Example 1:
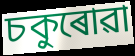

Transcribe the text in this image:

চকুৰোৱা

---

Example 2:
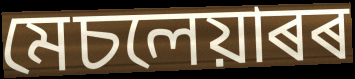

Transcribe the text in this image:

মেচলেয়াৰৰ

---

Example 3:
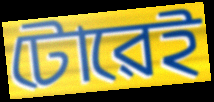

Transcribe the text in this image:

টোৱেই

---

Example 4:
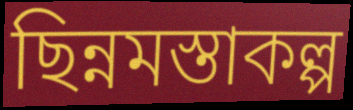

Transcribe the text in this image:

ছিন্নমস্তাকল্প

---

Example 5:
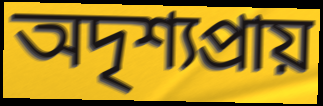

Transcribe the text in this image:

অদৃশ্যপ্ৰায়